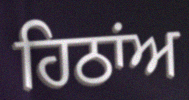
ਹਿਠਾਂਅ